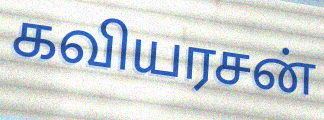
கவியரசன்